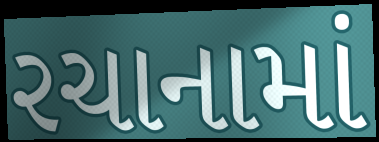
રચાનામાં